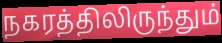
நகரத்திலிருந்தும்